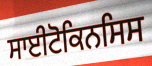
ਸਾਈਟੋਕਿਨਸਿਸ